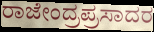
ರಾಜೇಂದ್ರಪ್ರಸಾದರ